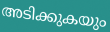
അടിക്കുകയും